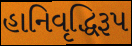
હાનિવૃદ્ધિરૂપ